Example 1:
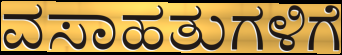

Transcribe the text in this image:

ವಸಾಹತುಗಳಿಗೆ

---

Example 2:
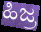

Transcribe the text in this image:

ಹಿಜ್ರ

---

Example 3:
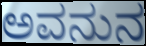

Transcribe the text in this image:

ಅವನುನ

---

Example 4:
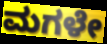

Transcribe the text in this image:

ಮಗಳೇ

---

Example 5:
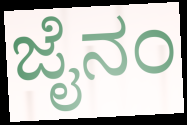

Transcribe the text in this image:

ಜೈನಂ